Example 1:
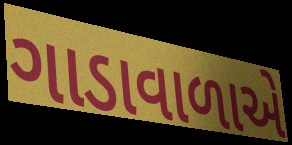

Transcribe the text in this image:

ગાડાવાળાએ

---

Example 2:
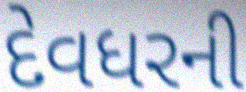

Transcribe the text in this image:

દેવધરની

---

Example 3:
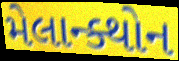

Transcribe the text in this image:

મેલાન્ક્થોન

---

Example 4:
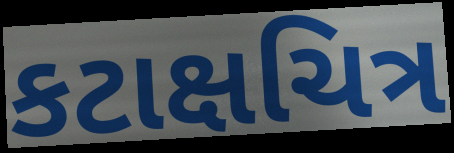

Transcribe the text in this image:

કટાક્ષચિત્ર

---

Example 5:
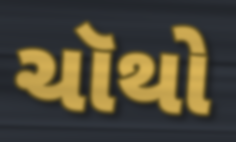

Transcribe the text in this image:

ચૉથો